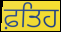
ਫ਼ਤਿਹ